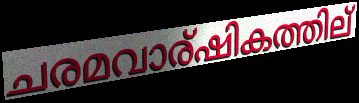
ചരമവാര്ഷികത്തില്